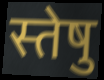
स्तेषु